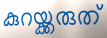
കുറയ്ക്കരുത്